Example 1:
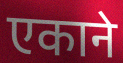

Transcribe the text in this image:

एकाने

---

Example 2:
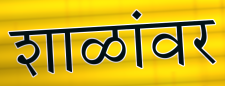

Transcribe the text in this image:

शाळांवर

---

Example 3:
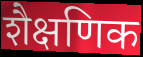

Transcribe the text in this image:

शैक्षणिक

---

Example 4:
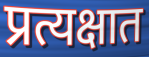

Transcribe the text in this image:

प्रत्यक्षात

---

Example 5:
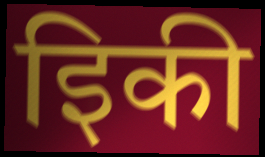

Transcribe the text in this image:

इिकी